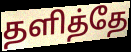
தளித்தே